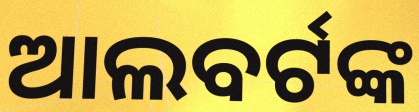
ଆଲବର୍ଟଙ୍କ